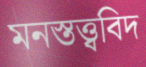
মনস্তত্ত্ববিদ